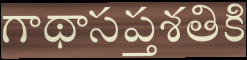
గాథాసప్తశతికి